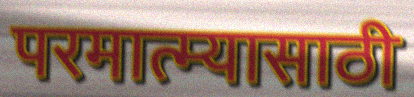
परमात्म्यासाठी